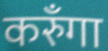
करुँगा